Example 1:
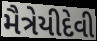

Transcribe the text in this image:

મૈત્રેયીદેવી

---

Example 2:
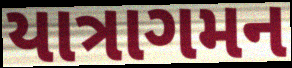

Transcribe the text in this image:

યાત્રાગમન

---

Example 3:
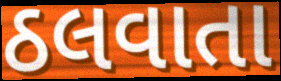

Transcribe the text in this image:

ઠલવાતા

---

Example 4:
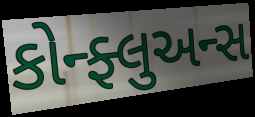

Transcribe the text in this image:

કોન્ફ્લુઅન્સ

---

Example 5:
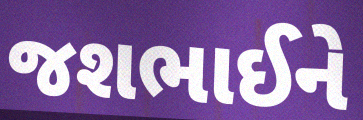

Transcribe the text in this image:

જશભાઈને